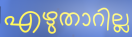
എഴുതാറില്ല